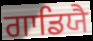
ਗਾਡਿਯੈ